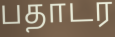
பதாடர